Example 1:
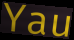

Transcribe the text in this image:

Yau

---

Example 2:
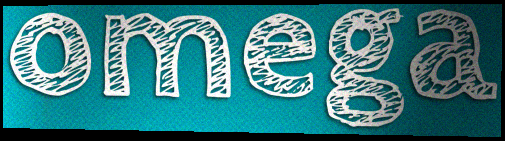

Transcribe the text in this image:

omega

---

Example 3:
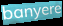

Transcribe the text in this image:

banyere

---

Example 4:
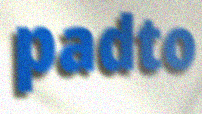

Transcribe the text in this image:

padto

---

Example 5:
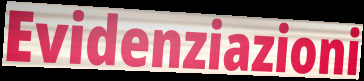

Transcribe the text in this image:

Evidenziazioni